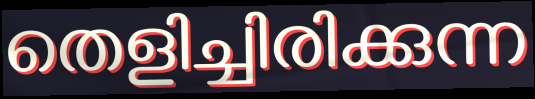
തെളിച്ചിരിക്കുന്ന